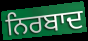
ਨਿਰਬਾਦ